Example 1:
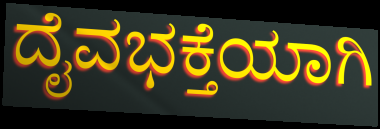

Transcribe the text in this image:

ದೈವಭಕ್ತೆಯಾಗಿ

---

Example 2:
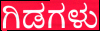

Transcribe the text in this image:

ಗಿಡಗಳು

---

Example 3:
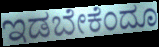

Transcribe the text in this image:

ಇಡಬೇಕೆಂದೂ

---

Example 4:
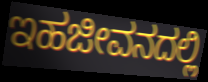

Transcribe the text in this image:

ಇಹಜೀವನದಲ್ಲಿ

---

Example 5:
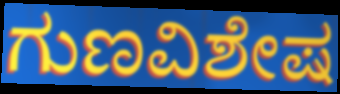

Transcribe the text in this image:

ಗುಣವಿಶೇಷ